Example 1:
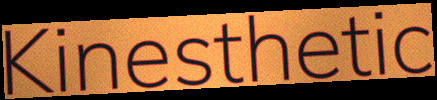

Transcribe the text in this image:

Kinesthetic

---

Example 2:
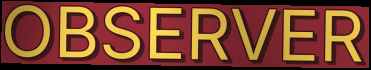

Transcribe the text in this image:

OBSERVER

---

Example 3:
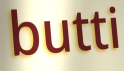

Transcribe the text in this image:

butti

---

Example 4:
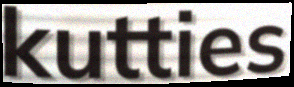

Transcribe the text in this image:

kutties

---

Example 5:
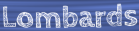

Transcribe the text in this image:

Lombards